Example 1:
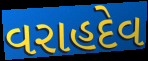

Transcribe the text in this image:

વરાહદેવ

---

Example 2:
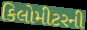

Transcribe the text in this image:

કિલોમીટરની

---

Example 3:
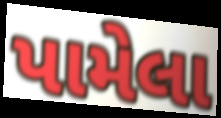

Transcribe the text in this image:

પામેલા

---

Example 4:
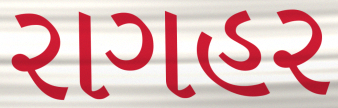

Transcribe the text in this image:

રાગહર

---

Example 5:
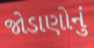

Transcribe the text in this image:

જોડાણોનું